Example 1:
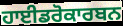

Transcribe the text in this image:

ਹਾਈਡਰੋਕਾਰਬਨ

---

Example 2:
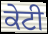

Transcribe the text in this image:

ਕੇਟੀ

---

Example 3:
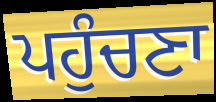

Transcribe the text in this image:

ਪਹੁੰਚਣਾ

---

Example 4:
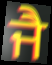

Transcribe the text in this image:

ਜੈ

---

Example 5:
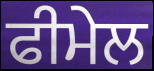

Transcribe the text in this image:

ਫੀਮੇਲ